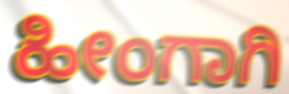
ಹೀಂಗಾಗಿ